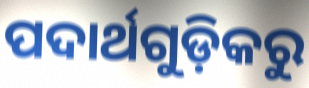
ପଦାର୍ଥଗୁଡ଼ିକରୁ